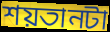
শয়তানটা